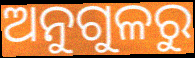
ଅନୁଗୁଳରୁ